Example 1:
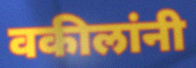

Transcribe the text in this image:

वकीलांनी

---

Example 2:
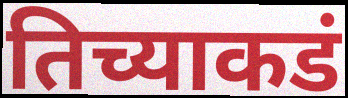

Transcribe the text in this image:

तिच्याकडं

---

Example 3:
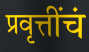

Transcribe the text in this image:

प्रवृत्तींचं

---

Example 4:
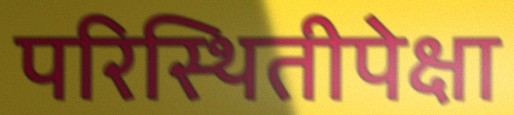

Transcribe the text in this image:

परिस्थितीपेक्षा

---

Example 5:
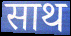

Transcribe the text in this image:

साथ